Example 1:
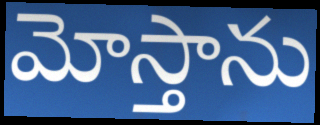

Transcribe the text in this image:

మోస్తాను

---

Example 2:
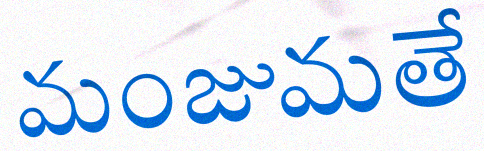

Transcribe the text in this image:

మంజుమతే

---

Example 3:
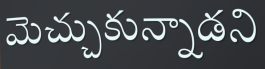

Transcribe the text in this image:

మెచ్చుకున్నాడని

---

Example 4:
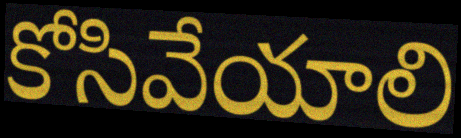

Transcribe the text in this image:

కోసివేయాలి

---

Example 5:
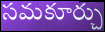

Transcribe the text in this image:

సమకూర్చు